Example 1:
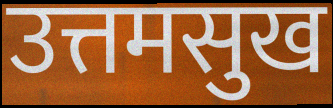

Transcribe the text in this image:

उत्तमसुख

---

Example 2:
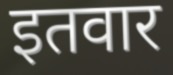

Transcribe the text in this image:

इतवार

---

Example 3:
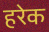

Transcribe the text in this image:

हरेक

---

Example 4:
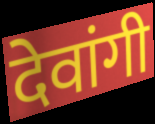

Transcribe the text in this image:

देवांगी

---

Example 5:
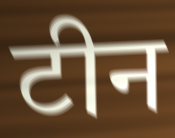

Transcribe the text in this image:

टीन